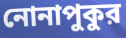
নোনাপুকুর